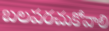
బలపరచుకోవాలి